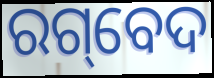
ରଗ୍‌ବେଦ